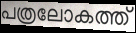
പത്രലോകത്ത്